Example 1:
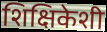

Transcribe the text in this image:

शिक्षिकेशी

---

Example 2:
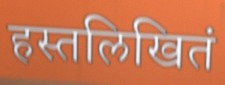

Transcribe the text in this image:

हस्तलिखितं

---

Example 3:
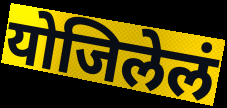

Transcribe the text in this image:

योजिलेलं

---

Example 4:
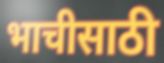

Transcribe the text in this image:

भाचीसाठी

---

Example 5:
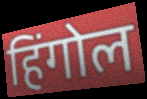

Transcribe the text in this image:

हिंगोल